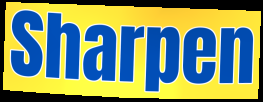
Sharpen